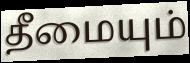
தீமையும்